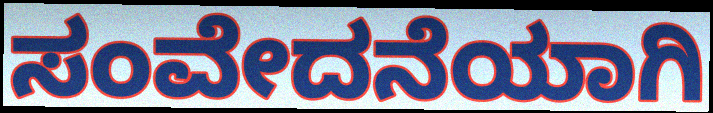
ಸಂವೇದನೆಯಾಗಿ